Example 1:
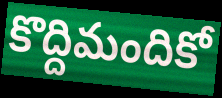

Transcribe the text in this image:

కొద్దిమందికో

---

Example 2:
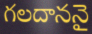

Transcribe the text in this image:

గలదాననై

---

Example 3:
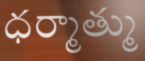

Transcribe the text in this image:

ధర్మాత్ము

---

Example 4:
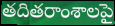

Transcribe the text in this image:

తదితరాంశాలపై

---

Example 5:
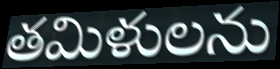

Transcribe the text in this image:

తమిళులను